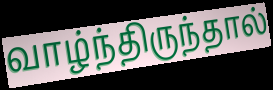
வாழ்ந்திருந்தால்